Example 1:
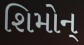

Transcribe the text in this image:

શિમોન્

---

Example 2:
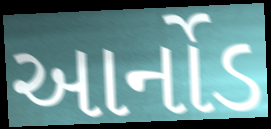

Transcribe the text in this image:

આર્નોડ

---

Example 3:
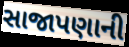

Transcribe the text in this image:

સાજાપણાની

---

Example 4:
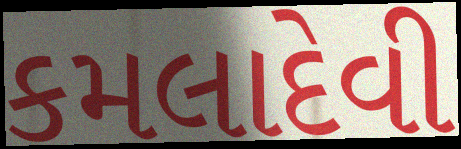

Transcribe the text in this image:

કમલાદેવી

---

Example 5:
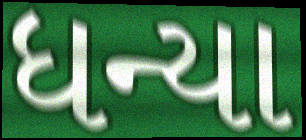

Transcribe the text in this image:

ધન્યા